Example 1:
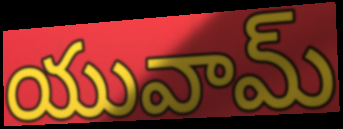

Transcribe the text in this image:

యువామ్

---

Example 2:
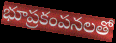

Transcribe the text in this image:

భూప్రకంపనలతో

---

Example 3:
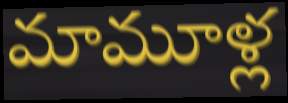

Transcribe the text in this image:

మామూళ్ల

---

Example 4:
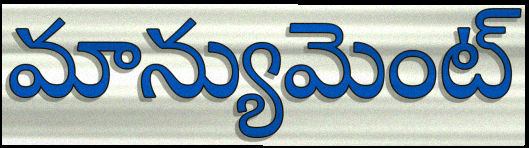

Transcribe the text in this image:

మాన్యుమెంట్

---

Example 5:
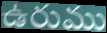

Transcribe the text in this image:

ఉరుము